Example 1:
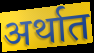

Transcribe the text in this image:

अर्थात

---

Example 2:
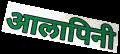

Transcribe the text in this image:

आलापिनी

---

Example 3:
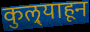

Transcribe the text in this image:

कुल्र्याहून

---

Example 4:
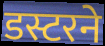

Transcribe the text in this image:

डस्टरने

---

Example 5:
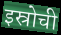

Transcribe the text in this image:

इस्रोची